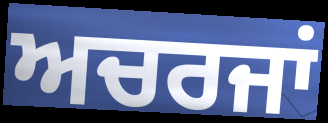
ਅਚਰਜਾਂ